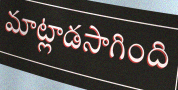
మాట్లాడసాగింది